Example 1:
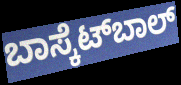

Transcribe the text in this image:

ಬಾಸ್ಕೆಟ್‍ಬಾಲ್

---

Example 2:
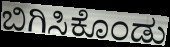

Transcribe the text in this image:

ಬಿಗಿಸಿಕೊಂಡು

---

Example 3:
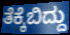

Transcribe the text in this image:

ತೆಕ್ಕೆಬಿದ್ದು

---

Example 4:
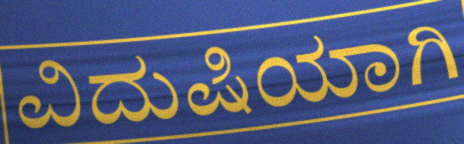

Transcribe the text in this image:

ವಿದುಷಿಯಾಗಿ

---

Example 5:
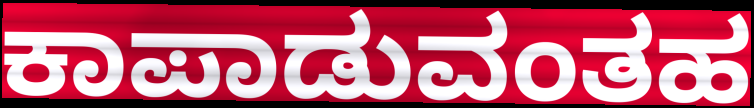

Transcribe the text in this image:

ಕಾಪಾಡುವಂತಹ